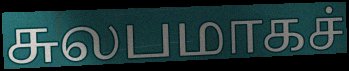
சுலபமாகச்